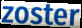
zoster